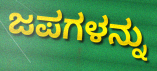
ಜಪಗಳನ್ನು